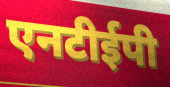
एनटीईपी